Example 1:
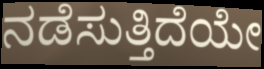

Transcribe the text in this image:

ನಡೆಸುತ್ತಿದೆಯೇ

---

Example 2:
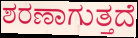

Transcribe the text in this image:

ಶರಣಾಗುತ್ತದೆ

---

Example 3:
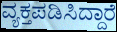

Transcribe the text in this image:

ವ್ಯಕ್ತಪಡಿಸಿದ್ದಾರೆ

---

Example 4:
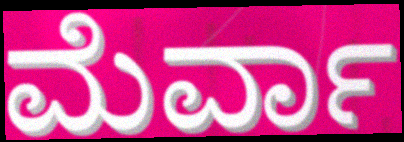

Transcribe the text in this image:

ಮೆರ್ವಾ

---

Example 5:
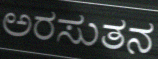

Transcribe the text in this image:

ಅರಸುತನ